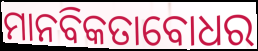
ମାନବିକତାବୋଧର